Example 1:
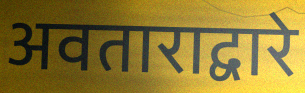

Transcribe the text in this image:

अवताराद्वारे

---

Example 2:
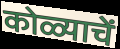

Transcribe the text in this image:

कोळ्याचें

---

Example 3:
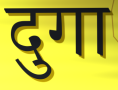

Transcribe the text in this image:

दुगा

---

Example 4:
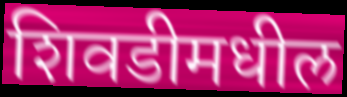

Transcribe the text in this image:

शिवडीमधील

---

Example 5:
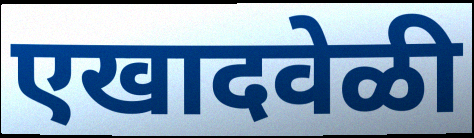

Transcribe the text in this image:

एखादवेळी